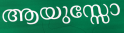
ആയുസ്സോ